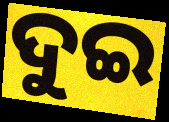
ଦୁଇ